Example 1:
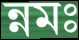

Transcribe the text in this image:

ন্নমঃ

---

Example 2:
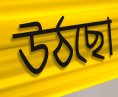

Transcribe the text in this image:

উঠছো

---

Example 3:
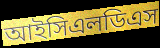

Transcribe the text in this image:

আইসিএলডিএস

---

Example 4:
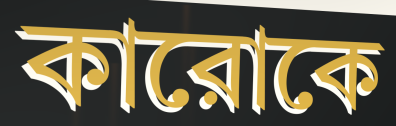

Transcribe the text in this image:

কারোকে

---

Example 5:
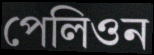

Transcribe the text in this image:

পেলিওন